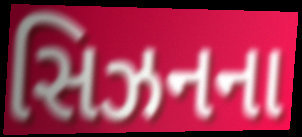
સિઝનના